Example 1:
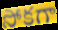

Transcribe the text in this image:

సోకగా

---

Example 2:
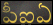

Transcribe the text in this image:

పీఐఏ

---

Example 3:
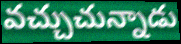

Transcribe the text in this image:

వచ్చుచున్నాడు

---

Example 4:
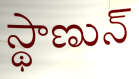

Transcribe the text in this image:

స్థాణున్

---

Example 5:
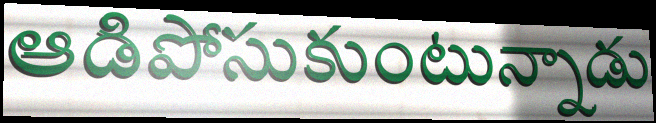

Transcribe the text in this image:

ఆడిపోసుకుంటున్నాడు